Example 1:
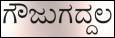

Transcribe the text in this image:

ಗೌಜುಗದ್ದಲ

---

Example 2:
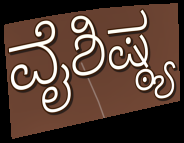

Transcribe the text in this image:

ವೈಶಿಷ್ಠ್ಯ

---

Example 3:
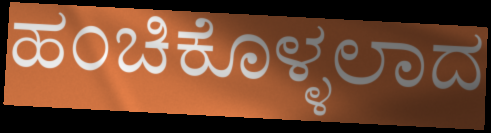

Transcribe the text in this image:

ಹಂಚಿಕೊಳ್ಳಲಾದ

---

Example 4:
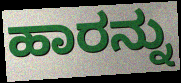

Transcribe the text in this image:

ಹಾರನ್ನು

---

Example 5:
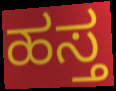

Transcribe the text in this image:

ಹಸ್ತ